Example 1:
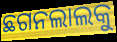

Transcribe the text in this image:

ଛଗନଲାଲକୁ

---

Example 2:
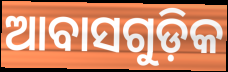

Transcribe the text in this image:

ଆବାସଗୁଡ଼ିକ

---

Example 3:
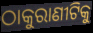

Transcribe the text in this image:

ଠାକୁରାଣୀଟିକୁ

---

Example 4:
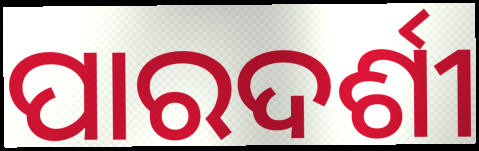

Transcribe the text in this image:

ପାରଦର୍ଶୀ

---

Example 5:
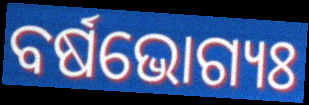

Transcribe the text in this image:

ବର୍ଷଭୋଗ୍ୟଃ